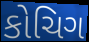
કોચિગ